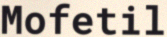
Mofetil